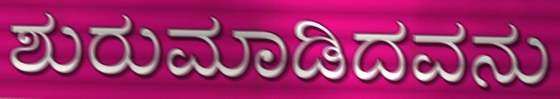
ಶುರುಮಾಡಿದವನು